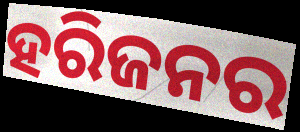
ହରିଜନର